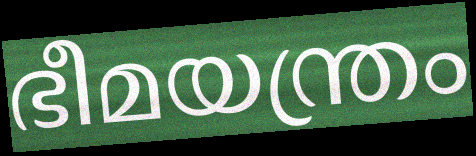
ഭീമയന്ത്രം